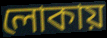
লোকায়